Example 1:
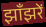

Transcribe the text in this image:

झाँझरें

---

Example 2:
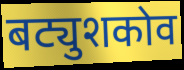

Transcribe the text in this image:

बट्युशकोव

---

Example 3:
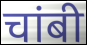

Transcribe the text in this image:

चांबी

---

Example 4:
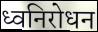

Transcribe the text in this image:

ध्वनिरोधन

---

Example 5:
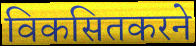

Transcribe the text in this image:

विकसितकरने